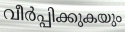
വീർപ്പിക്കുകയും